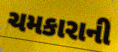
ચમકારાની